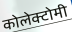
कोलेक्टोमी